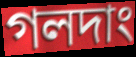
গলদাং